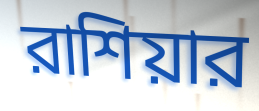
রাশিয়ার